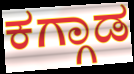
ಕಗ್ಗಾಡ